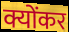
क्योंकर